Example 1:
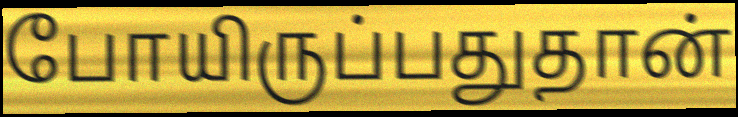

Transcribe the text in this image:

போயிருப்பதுதான்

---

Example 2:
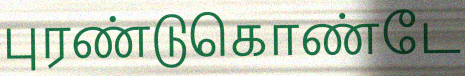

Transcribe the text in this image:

புரண்டுகொண்டே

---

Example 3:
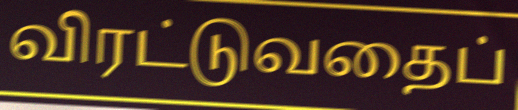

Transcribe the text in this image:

விரட்டுவதைப்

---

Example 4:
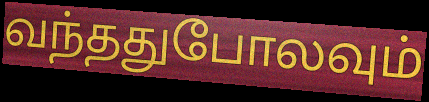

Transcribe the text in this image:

வந்ததுபோலவும்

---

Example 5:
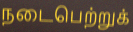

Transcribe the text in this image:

நடைபெற்றுக்